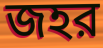
জহর